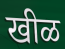
खीळ